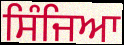
ਸਿੰਜਿਆ